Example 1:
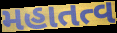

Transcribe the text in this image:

મહાતત્વ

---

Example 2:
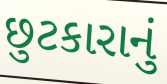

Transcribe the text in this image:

છુટકારાનું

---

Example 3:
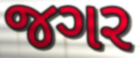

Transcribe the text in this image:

જગર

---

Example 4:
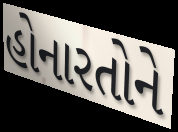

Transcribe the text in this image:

હોનારતોને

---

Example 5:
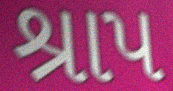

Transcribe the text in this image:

શ્રાપ